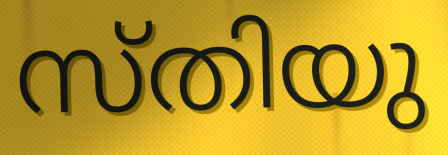
സ്തിയു